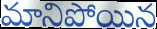
మానిపోయిన